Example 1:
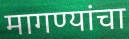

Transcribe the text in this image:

मागण्यांचा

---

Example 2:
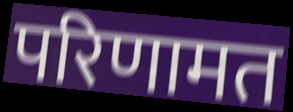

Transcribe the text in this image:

परिणामत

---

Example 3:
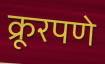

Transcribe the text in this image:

क्रूरपणे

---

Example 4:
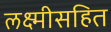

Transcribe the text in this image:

लक्ष्मीसहित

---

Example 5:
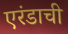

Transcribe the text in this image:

एरंडाची